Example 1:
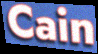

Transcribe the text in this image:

Cain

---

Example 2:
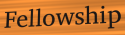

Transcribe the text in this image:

Fellowship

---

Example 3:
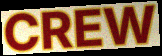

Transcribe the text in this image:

CREW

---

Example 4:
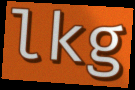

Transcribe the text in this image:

lkg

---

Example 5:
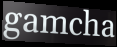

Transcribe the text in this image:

gamcha